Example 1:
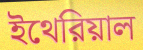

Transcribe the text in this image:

ইথেরিয়াল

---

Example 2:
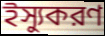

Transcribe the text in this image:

ইস্যুকরণ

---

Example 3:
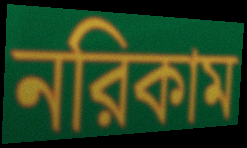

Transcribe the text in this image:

নরিকাম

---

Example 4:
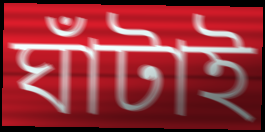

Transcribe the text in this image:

ঘাঁটাই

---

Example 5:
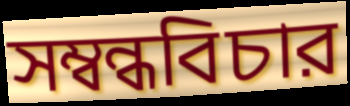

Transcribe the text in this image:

সম্বন্ধবিচার